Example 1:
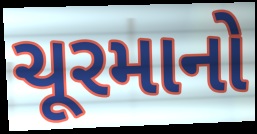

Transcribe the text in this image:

ચૂરમાનો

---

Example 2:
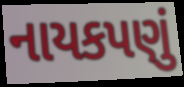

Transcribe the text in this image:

નાયકપણું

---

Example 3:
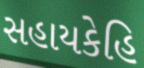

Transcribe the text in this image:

સહાયકેહિ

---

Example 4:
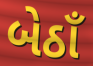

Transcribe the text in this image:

બેઠાઁ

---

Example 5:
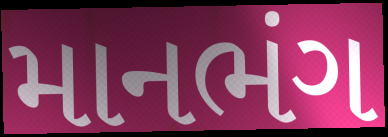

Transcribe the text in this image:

માનભંગ